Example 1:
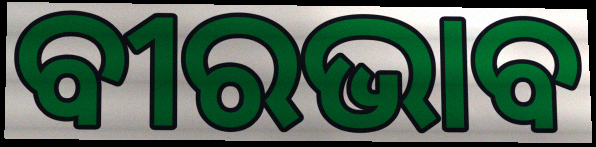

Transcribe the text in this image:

ବୀରଭାବ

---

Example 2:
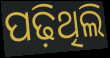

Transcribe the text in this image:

ପଢ଼ିଥିଲି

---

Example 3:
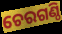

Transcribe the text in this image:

ଚେରଗଣ୍ଠି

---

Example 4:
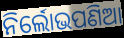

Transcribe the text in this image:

ନିର୍ଲୋଭପଣିଆ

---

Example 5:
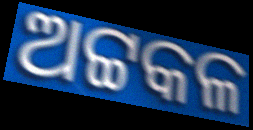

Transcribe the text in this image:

ଅଟ୍ଟକଳ